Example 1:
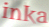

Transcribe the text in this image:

inka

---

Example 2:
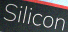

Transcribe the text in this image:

Silicon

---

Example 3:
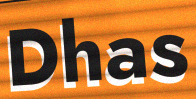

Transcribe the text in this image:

Dhas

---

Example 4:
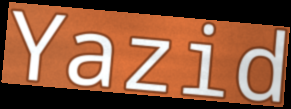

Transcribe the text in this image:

Yazid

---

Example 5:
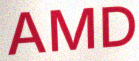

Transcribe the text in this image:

AMD